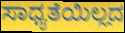
ಸಾಧ್ಯತೆಯಿಲ್ಲದ